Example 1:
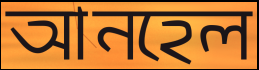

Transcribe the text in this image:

আনহেল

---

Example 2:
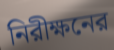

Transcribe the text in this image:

নিরীক্ষনের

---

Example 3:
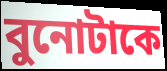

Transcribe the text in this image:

বুনোটাকে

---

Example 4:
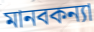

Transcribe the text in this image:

মানবকন্যা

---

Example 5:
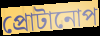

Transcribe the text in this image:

প্রোটানোপ